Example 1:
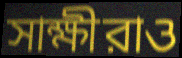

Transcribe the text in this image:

সাক্ষীরাও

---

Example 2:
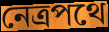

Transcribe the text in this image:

নেত্রপথে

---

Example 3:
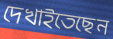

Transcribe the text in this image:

দেখাইতেছেন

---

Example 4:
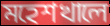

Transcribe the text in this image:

মহেশখালে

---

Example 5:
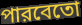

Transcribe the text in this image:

পারবেতো